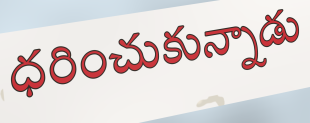
ధరించుకున్నాడు